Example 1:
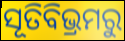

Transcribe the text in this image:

ସୂତିବିଭ୍ରମରୁ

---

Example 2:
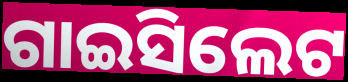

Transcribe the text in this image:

ଗାଇସିଲେଟ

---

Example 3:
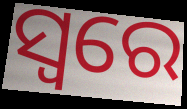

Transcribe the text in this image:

ସ୍ୱରେ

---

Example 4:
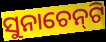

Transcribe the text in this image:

ସୁନାଚେନ୍‍ଟି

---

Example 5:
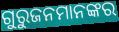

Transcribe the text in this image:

ଗୁରୁଜନମାନଙ୍କର